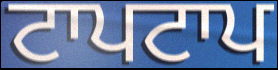
ਟਾਪਟਾਪ